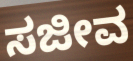
ಸಜೀವ